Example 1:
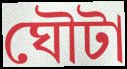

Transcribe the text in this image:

ঘৌটা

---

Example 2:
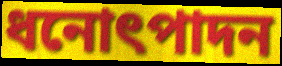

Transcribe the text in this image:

ধনোৎপাদন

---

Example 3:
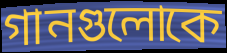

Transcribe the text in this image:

গানগুলোকে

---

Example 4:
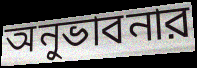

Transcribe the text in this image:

অনুভাবনার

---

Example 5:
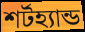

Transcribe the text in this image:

শর্টহ্যান্ড